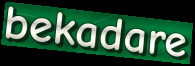
bekadare